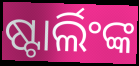
ଷ୍ଟାର୍ଲିଂଙ୍କ